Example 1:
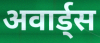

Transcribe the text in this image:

अवार्ड्स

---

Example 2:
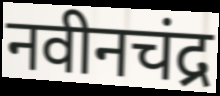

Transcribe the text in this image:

नवीनचंद्र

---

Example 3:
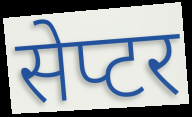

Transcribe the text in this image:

सेप्टर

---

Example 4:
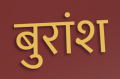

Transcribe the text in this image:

बुरांश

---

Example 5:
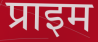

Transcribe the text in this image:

प्राइम